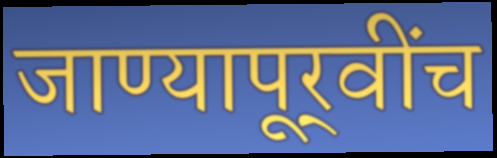
जाण्यापूर्वींच